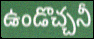
ఉండొచ్చనీ